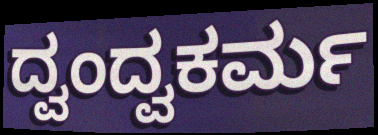
ದ್ವಂದ್ವಕರ್ಮ